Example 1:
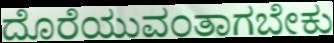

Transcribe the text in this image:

ದೊರೆಯುವಂತಾಗಬೇಕು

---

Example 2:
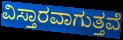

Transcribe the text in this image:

ವಿಸ್ತಾರವಾಗುತ್ತವೆ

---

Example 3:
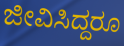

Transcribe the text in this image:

ಜೀವಿಸಿದ್ದರೂ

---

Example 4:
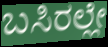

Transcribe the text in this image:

ಬಸಿರಲ್ಲೇ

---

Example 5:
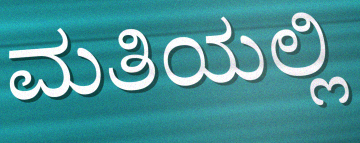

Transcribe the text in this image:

ಮತಿಯಲ್ಲಿ